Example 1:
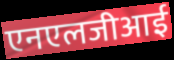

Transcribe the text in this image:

एनएलजीआई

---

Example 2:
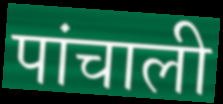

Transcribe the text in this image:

पांचाली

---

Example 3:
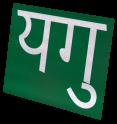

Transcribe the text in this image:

यगु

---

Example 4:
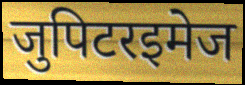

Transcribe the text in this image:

जुपिटरइमेज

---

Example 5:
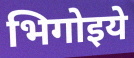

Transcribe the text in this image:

भिगोइये